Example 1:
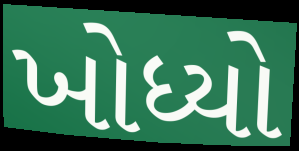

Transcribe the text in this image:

ખોધ્યો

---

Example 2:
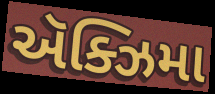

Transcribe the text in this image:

ઍક્ઝિમા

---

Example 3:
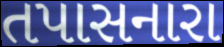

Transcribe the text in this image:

તપાસનારા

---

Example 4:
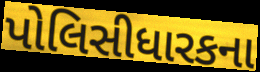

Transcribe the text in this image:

પોલિસીધારકના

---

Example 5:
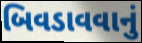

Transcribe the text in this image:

બિવડાવવાનું